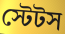
স্টেটস